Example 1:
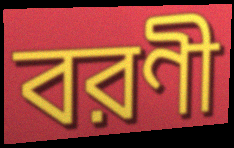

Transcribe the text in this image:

বরণী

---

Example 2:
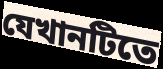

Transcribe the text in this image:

যেখানটিতে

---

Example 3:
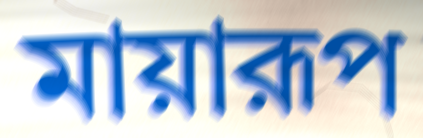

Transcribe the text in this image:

মায়ারূপ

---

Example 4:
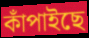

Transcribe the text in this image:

কাঁপাইছে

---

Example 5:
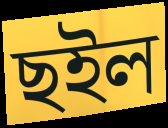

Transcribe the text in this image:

ছইল